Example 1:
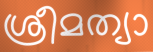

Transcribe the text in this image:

ശ്രീമത്യാ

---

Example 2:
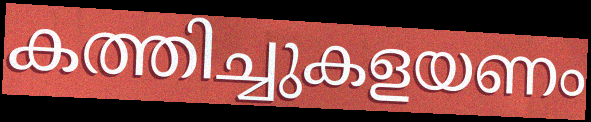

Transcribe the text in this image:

കത്തിച്ചുകളയണം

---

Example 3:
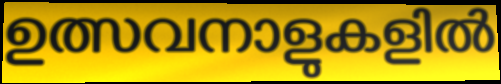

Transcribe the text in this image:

ഉത്സവനാളുകളിൽ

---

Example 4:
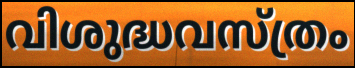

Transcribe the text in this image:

വിശുദ്ധവസ്ത്രം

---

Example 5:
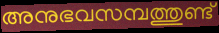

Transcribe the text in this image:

അനുഭവസമ്പത്തുണ്ട്